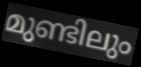
മുണ്ടിലും